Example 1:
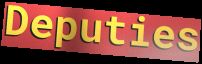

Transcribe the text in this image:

Deputies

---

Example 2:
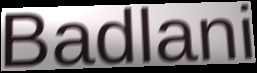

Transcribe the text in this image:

Badlani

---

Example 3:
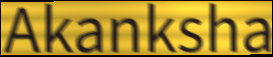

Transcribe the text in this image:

Akanksha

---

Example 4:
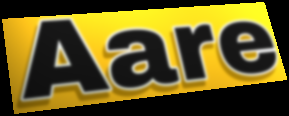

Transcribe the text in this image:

Aare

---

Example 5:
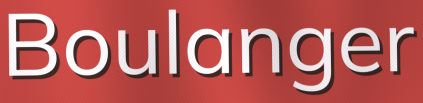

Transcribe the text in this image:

Boulanger